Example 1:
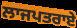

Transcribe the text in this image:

ਲਾਜਪਤਰਾਏ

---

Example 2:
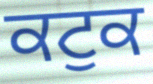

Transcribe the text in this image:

ਕਟੁਕ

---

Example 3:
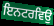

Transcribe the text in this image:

ਇਨਟਰਵਿਉ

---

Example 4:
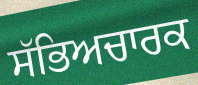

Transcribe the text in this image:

ਸੱਭਿਅਚਾਰਕ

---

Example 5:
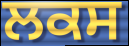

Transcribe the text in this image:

ਲਕਸ